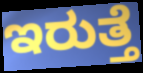
ಇರುತ್ತೆ